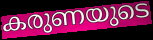
കരുണയുടെ